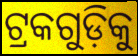
ଟ୍ରକଗୁଡ଼ିକୁ